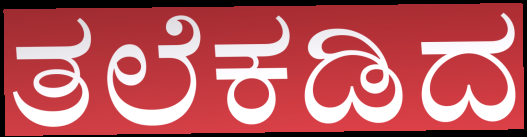
ತಲೆಕಡಿದ